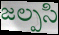
జల్పసి